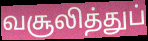
வசூலித்துப்